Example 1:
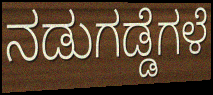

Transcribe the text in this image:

ನಡುಗಡ್ಡೆಗಳೆ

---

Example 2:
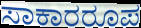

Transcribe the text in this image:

ಸಾಕಾರರೂಪ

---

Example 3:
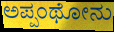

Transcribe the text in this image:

ಅಪ್ಪಂಥೋನು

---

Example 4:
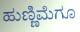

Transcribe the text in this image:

ಹುಣ್ಣಿಮೆಗೂ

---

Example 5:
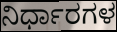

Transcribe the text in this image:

ನಿರ್ಧಾರಗಳ